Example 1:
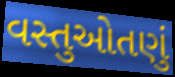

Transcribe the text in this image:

વસ્તુઓતણું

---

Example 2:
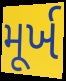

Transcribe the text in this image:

મૂર્ખ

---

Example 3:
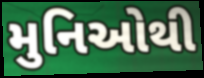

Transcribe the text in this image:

મુનિઓથી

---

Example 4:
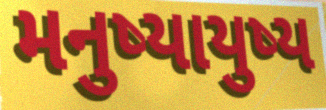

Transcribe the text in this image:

મનુષ્યાયુષ્ય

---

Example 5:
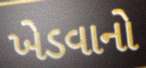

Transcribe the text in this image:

ખેડવાનો